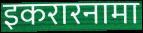
इकरारनामा